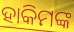
ହାକିମଙ୍କ